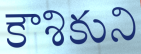
కౌశికుని